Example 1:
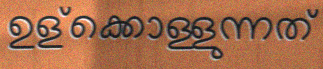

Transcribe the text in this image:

ഉള്ക്കൊള്ളുന്നത്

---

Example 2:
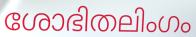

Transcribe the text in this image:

ശോഭിതലിംഗം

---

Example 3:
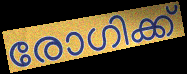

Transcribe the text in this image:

രോഗിക്ക്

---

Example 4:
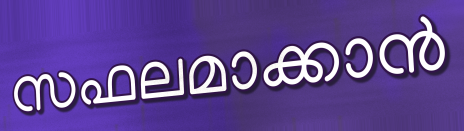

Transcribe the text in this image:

സഫലമാക്കാൻ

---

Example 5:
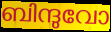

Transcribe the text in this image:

ബിന്ദുവോ